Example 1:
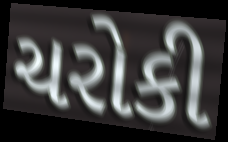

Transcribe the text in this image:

ચરોકી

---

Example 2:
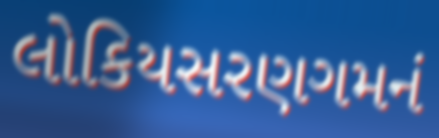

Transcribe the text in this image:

લોકિયસરણગમનં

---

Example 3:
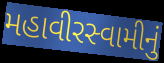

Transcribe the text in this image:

મહાવીરસ્વામીનું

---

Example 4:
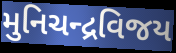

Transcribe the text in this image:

મુનિચન્દ્રવિજય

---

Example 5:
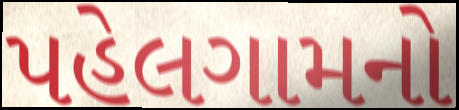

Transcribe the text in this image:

પહેલગામનો